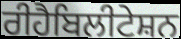
ਰੀਹੈਬਿਲੀਟੇਸ਼ਨ